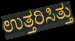
ಉತ್ತರಿಸಿತ್ತು